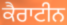
ਕੈਰਾਟੀਨ